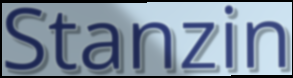
Stanzin